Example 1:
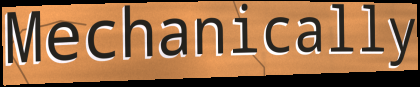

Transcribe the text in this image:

Mechanically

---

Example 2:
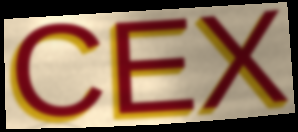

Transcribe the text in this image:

CEX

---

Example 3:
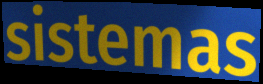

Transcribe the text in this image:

sistemas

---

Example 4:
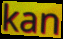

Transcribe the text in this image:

kan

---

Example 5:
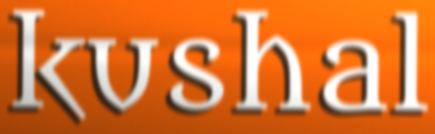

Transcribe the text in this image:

kushal